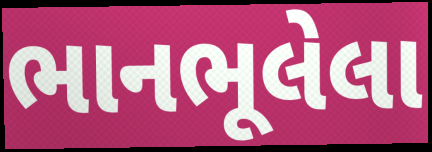
ભાનભૂલેલા